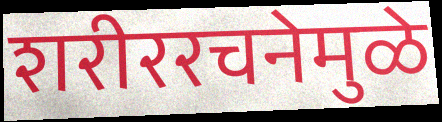
शरीररचनेमुळे